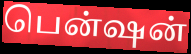
பென்ஷன்